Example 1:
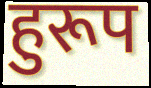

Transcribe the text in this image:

हुरूप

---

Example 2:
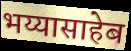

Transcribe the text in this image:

भय्यासाहेब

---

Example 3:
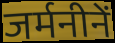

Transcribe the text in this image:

जर्मनीनें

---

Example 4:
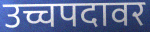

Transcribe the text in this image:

उच्चपदावर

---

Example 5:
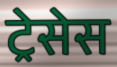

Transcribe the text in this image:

ट्रेसेस